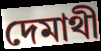
দেমাথী